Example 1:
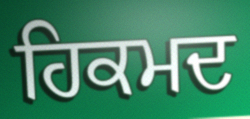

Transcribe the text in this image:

ਹਿਕਮਦ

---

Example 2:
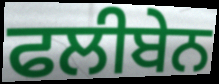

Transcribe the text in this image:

ਫਲੀਬੇਨ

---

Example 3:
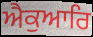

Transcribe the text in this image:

ਐਕੁਆਰਿ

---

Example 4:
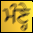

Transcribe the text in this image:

ਮੰਣ੍ਹੇ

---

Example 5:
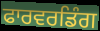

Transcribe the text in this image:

ਫਾਰਵਰਡਿੰਗ